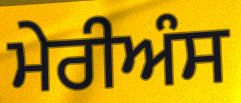
ਮੇਰੀਅੰਸ